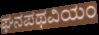
ಘನಪಥವಿಯಂ